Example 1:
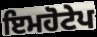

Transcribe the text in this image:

ਇਮਹੋਟੇਪ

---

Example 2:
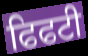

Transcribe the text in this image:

ਫਿਫਟੀ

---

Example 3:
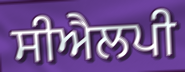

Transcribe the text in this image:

ਸੀਐਲਪੀ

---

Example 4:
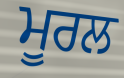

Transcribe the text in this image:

ਮੂਰਲ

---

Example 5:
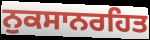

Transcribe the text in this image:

ਨੁਕਸਾਨਰਹਿਤ